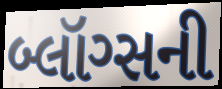
બ્લૉગ્સની